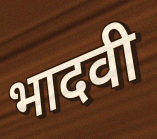
भादवी